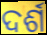
ଦର୍ଶ